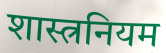
शास्त्रनियम